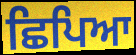
ਛਿਪਿਆ